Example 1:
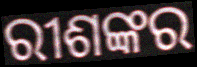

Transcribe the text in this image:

ରୀଶଙ୍କର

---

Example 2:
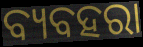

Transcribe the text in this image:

ବ୍ୟବହରା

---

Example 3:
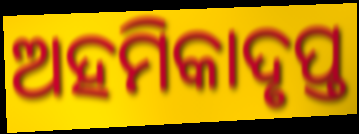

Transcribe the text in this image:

ଅହମିକାଦୃପ୍ତ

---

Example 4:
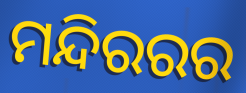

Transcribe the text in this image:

ମନ୍ଦିରରର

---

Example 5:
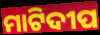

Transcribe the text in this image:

ମାଟିଦୀପ